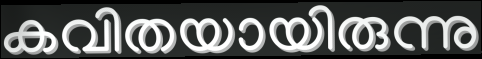
കവിതയായിരുന്നു